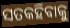
ସତକହିବାକୁ